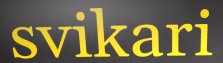
svikari